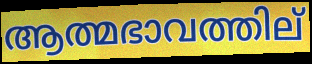
ആത്മഭാവത്തില്